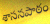
శాసనపాఠం